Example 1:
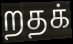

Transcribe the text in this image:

றதக்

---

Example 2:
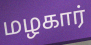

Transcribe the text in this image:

மழகார்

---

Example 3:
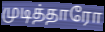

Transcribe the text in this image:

முடித்தாரோ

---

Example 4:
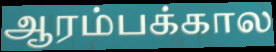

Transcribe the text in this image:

ஆரம்பக்கால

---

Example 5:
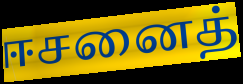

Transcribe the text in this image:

ஈசனைத்